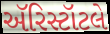
ઍરિસ્ટૉટલે